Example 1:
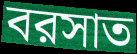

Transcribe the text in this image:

বরসাত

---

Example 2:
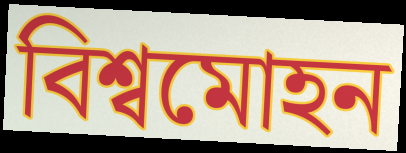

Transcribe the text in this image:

বিশ্বমোহন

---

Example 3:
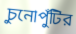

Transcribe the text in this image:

চুনোপুঁটির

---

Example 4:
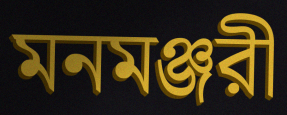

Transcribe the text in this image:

মনমঞ্জরী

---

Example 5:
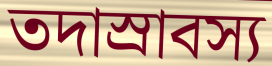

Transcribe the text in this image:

তদাস্রাবস্য